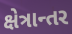
ક્ષેત્રાન્તર